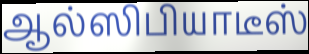
ஆல்ஸிபியாடீஸ்